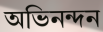
অভিনন্দন